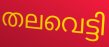
തലവെട്ടി